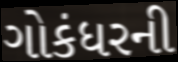
ગોકંધરની